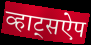
व्हाट्सऐप